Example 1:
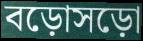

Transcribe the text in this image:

বড়োসড়ো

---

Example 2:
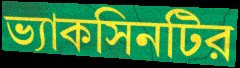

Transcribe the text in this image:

ভ্যাকসিনটির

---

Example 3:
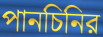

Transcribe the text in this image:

পানচিনির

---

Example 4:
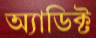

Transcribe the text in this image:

অ্যাডিক্ট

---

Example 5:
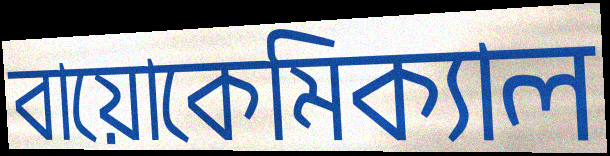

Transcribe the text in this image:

বায়োকেমিক্যাল